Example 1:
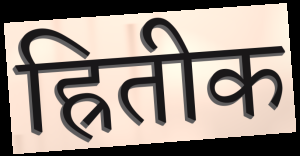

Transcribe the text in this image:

ह्रितीक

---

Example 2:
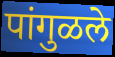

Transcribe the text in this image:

पांगुळले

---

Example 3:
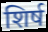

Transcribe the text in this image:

शिर्ष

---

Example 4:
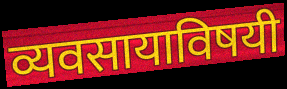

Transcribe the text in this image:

व्यवसायाविषयी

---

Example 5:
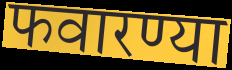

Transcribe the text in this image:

फवारण्या